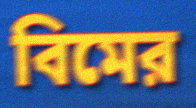
বিমের